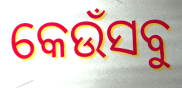
କେଉଁସବୁ